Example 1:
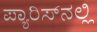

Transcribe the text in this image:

ಪ್ಯಾರಿಸ್‌ನಲ್ಲಿ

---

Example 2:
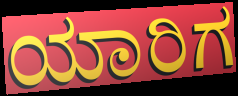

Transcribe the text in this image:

ಯಾರಿಗ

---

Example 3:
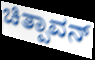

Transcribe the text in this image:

ಚಿತ್ಪಾವನ್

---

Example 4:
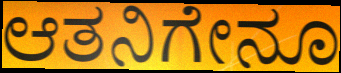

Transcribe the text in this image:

ಆತನಿಗೇನೂ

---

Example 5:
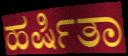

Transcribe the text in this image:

ಹರ್ಷಿತಾ